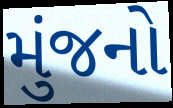
મુંજનો